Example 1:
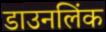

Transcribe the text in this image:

डाउनलिंक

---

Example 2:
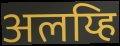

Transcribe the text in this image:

अलय्हि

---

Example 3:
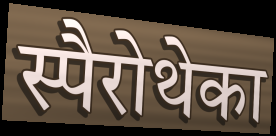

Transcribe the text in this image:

स्पैरोथेका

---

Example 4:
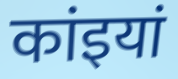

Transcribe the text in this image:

कांइयां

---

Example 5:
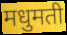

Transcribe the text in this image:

मधुमती